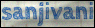
sanjivani